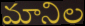
మానిల